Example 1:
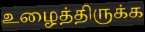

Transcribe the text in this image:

உழைத்திருக்க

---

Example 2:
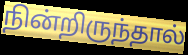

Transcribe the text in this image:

நின்றிருந்தால்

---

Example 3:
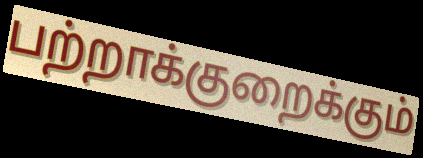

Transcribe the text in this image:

பற்றாக்குறைக்கும்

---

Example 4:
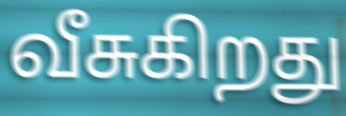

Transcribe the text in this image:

வீசுகிறது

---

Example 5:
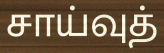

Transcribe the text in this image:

சாய்வுத்